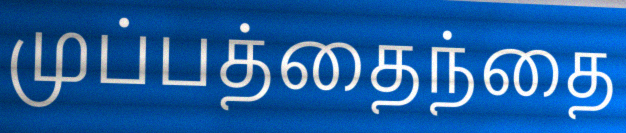
முப்பத்தைந்தை